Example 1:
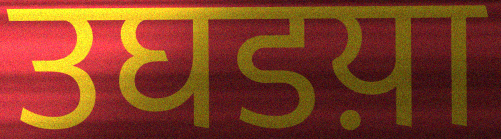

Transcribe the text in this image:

उघडय़ा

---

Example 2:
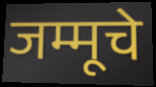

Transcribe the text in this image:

जम्मूचे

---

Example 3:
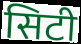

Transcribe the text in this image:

सिटी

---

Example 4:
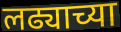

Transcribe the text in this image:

लढ्याच्या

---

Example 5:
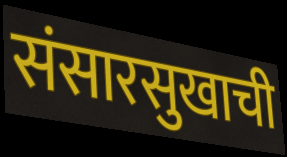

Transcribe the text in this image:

संसारसुखाची